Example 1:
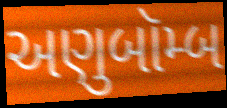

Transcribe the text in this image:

અણુબૉમ્બ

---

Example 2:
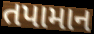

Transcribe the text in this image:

તપામાન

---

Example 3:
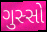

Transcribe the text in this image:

ગુસ્સો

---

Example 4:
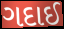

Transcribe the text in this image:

ગદાઈ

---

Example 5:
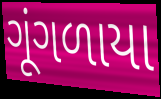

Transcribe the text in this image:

ગૂંગળાયા